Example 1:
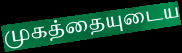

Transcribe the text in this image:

முகத்தையுடைய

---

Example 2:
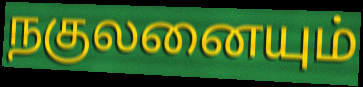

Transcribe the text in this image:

நகுலனையும்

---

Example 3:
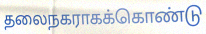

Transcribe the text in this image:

தலைநகராகக்கொண்டு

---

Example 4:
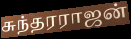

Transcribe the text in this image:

சுந்தரராஜன்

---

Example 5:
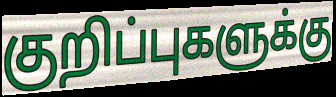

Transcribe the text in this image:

குறிப்புகளுக்கு